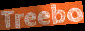
Treebo